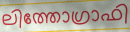
ലിത്തോഗ്രാഫി